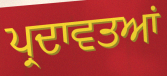
ਪ੍ਰਦਾਵਤਆਂ